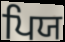
ਪਿਯ